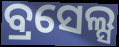
ବ୍ରସେଲ୍ସ